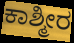
ಕಾಶ್ಮೀರ